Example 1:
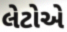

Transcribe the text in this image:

લેટોએ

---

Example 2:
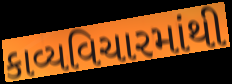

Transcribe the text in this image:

કાવ્યવિચારમાંથી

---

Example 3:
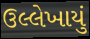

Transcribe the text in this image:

ઉલ્લેખાયું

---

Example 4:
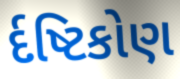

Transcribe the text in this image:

ર્દષ્ટિકોણ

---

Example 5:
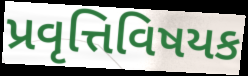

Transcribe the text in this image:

પ્રવૃત્તિવિષયક